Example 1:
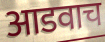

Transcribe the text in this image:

आडवाच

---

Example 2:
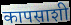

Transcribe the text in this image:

कापसाशी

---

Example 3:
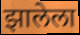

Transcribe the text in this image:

झालेला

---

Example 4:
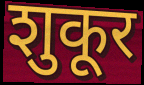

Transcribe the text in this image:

शुकूर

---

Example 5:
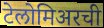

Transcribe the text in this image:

टेलोमिअरची